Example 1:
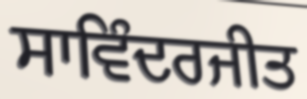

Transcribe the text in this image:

ਸਾਵਿੰਦਰਜੀਤ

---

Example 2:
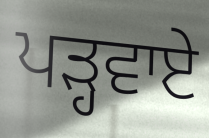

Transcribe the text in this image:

ਪੜ੍ਹਵਾਏ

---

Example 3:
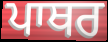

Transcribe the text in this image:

ਪਾਥਰ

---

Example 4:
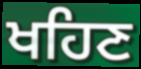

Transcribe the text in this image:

ਖਹਿਣ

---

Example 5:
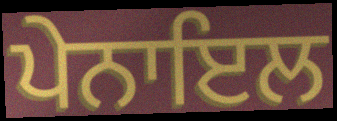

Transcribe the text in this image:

ਪੇਨਾਇਲ